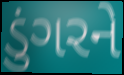
ડુંગરને